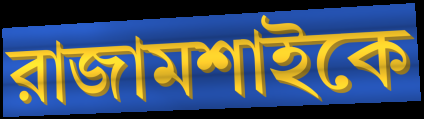
রাজামশাইকে